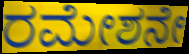
ರಮೇಶನೇ